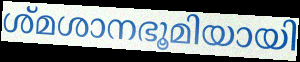
ശ്മശാനഭൂമിയായി